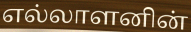
எல்லாளனின்